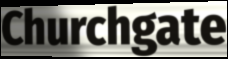
Churchgate